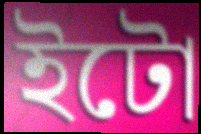
ইটো